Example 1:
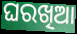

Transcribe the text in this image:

ଘରଖିଆ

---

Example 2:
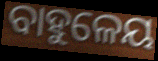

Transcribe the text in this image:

ବାହୁଳେୟ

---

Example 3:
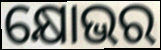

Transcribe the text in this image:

କ୍ଷୋଭର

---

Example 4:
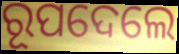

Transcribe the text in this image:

ରୂପଦେଲେ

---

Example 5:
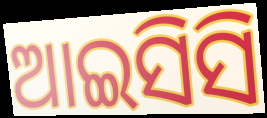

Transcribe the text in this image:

ଆଇସିସି